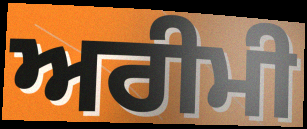
ਅਰੀਮੀ